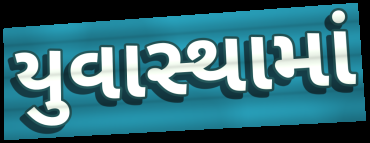
યુવાસ્થામાં